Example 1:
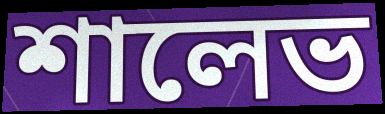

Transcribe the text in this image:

শালেভ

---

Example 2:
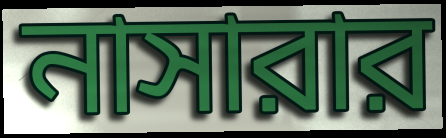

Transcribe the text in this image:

নাসারার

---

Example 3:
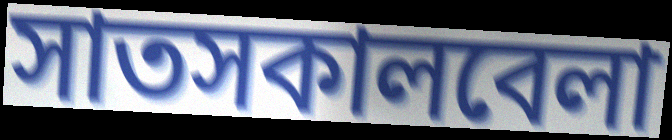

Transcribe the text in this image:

সাতসকালবেলা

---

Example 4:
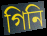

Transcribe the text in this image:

গিনি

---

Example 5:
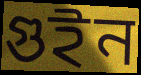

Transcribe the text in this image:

গুইন